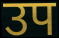
उप